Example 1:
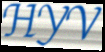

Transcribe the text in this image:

HYV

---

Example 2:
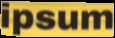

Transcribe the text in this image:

ipsum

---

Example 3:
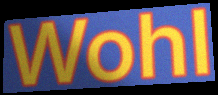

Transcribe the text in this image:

Wohl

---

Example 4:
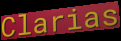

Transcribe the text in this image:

Clarias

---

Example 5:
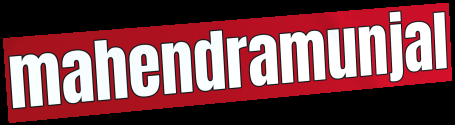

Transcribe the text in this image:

mahendramunjal